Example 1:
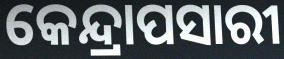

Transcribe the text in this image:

କେନ୍ଦ୍ରାପସାରୀ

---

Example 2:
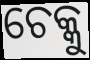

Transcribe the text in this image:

ଚେକ୍କୁ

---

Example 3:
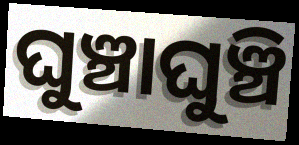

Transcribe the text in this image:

ଘୁଞ୍ଚାଘୁଞ୍ଚି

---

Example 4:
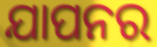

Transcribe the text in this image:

ଯାପନର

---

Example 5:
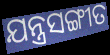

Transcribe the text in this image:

ଯନ୍ତ୍ରସଙ୍ଗୀତ